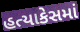
હત્યાકેસમાં